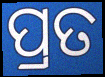
ପ୍ରତ